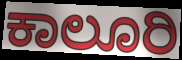
ಕಾಲೂರಿ